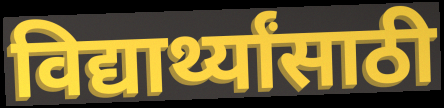
विद्यार्थ्यांसाठी